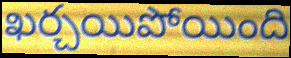
ఖర్చయిపోయింది